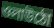
ওলাউঠো